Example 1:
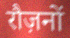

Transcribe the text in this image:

रौज़नों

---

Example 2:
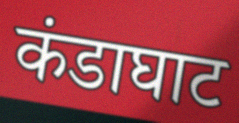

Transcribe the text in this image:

कंडाघाट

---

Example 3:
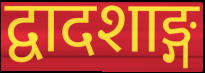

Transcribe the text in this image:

द्वादशाङ्ग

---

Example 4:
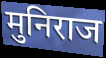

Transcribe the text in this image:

मुनिराज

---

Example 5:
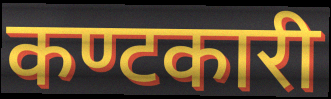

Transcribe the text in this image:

कण्टकारी